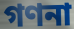
গণনা